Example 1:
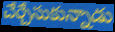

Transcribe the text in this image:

చేర్చేసుకున్నాడు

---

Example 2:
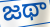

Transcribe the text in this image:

జథా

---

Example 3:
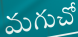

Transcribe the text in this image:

మగుచో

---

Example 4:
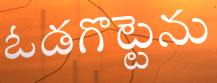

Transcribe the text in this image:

ఓడగొట్టెను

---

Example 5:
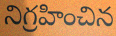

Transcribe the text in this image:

నిగ్రహించిన